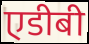
एडीबी